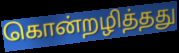
கொன்றழித்தது